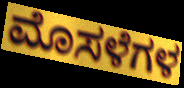
ಮೊಸಳೆಗಳ